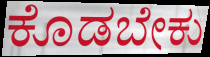
ಕೊಡಬೇಕು